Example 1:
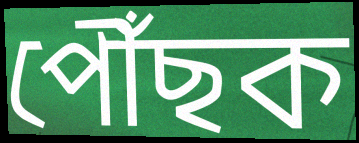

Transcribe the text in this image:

পৌঁছক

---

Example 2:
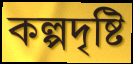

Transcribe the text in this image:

কল্পদৃষ্টি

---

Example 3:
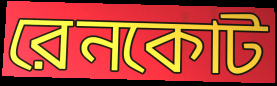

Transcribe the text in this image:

রেনকোট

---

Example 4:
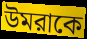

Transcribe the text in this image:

উমরাকে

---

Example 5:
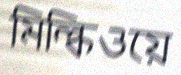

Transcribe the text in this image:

মিল্কিওয়ে